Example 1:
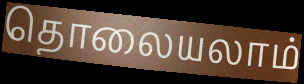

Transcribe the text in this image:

தொலையலாம்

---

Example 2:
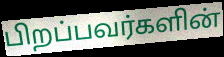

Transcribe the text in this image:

பிறப்பவர்களின்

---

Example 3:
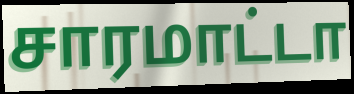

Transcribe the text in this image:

சாரமாட்டா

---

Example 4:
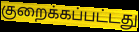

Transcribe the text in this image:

குறைக்கப்பட்டது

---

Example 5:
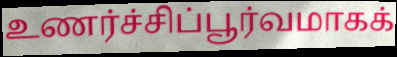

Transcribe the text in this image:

உணர்ச்சிப்பூர்வமாகக்